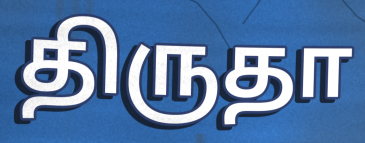
திருதா